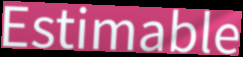
Estimable